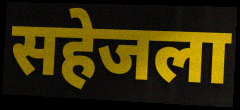
सहेजला